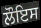
ਲੌਇਸ